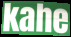
kahe